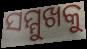
ସମ୍ମୁଖକୁ